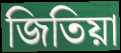
জিতিয়া